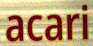
acari